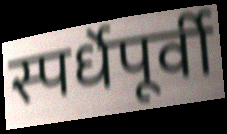
स्पर्धेपूर्वी